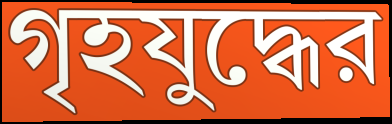
গৃহযুদ্ধের